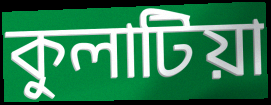
কুলাটিয়া